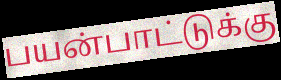
பயன்பாட்டுக்கு